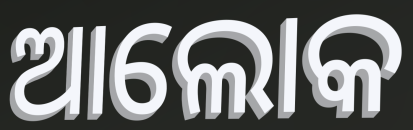
ଆଲୋକ